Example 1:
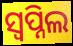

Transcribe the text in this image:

ସ୍ୱପ୍ନିଲ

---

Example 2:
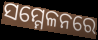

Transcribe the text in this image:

ସମ୍ମେଳନରେ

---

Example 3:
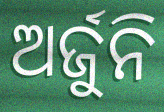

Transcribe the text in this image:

ଅର୍ଜୁନି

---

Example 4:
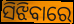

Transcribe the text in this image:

ସିଝିବାରେ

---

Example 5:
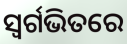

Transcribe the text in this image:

ସ୍ଵର୍ଗଭିତରେ